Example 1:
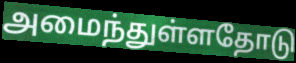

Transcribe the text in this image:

அமைந்துள்ளதோடு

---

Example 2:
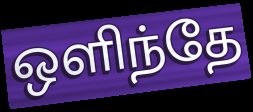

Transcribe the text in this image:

ஒளிந்தே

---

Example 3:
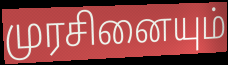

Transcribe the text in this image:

முரசினையும்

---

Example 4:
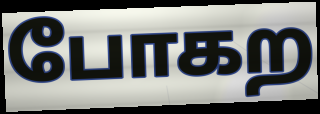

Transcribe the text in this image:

போகற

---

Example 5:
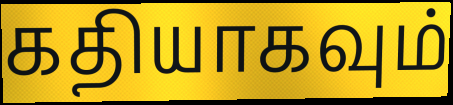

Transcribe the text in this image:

கதியாகவும்